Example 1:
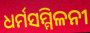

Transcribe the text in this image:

ଧର୍ମସମ୍ମିଳନୀ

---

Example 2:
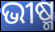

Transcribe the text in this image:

ଭୀଷ୍ମ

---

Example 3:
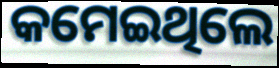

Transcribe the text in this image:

କମେଇଥିଲେ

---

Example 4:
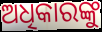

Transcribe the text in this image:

ଅଧିକାରଙ୍କୁ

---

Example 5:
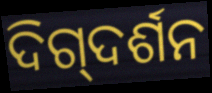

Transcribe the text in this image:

ଦିଗ୍‍ଦର୍ଶନ